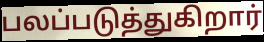
பலப்படுத்துகிறார்